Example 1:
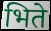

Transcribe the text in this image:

भिते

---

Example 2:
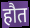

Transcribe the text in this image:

हौत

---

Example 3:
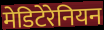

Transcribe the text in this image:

मेडिटेरेनियन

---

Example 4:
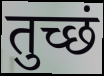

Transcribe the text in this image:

तुच्छं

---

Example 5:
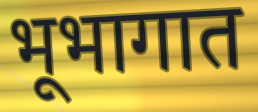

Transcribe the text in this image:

भूभागात